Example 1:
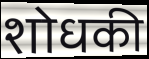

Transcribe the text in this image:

शोधकी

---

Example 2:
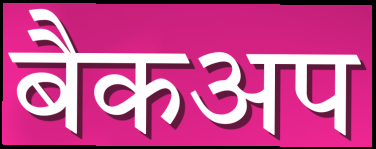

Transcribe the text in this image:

बैकअप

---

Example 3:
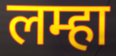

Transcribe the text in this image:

लम्हा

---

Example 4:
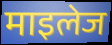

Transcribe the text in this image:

माइलेज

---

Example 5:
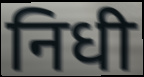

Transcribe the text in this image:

निधी